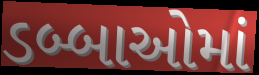
ડબ્બાઓમાં